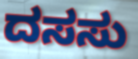
ದಸಸು